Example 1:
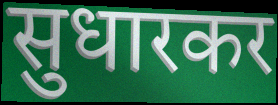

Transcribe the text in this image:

सुधारकर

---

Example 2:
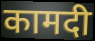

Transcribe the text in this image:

कामदी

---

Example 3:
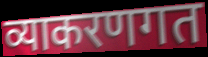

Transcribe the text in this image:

व्याकरणगत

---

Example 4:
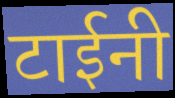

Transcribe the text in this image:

टाईनी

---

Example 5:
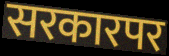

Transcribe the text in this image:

सरकारपर